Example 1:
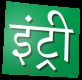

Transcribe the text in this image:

इंट्री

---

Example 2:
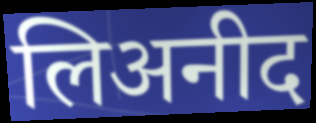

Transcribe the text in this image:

लिअनीद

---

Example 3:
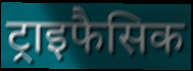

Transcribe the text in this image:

ट्राइफैसिक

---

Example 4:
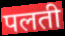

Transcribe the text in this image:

पलती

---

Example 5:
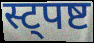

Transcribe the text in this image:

स्ट्पष्ट